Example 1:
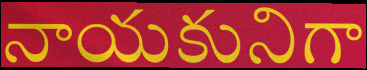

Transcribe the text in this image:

నాయకునిగా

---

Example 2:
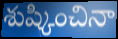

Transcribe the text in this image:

శుష్కించినా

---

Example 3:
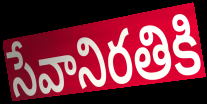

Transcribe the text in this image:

సేవానిరతికి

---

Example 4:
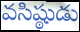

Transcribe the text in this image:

వసిష్ఠుడు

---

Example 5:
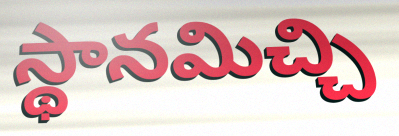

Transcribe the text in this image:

స్థానమిచ్చి